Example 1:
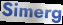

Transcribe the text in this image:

Simerg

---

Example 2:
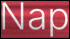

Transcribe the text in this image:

Nap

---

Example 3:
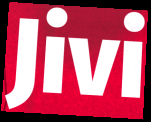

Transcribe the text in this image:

Jivi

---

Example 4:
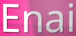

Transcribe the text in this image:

Enai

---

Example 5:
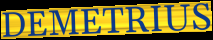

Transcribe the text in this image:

DEMETRIUS